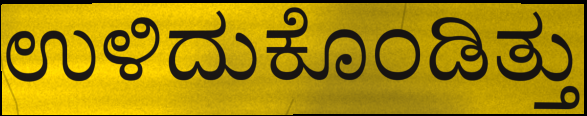
ಉಳಿದುಕೊಂಡಿತ್ತು